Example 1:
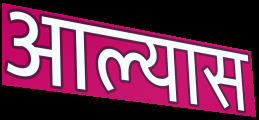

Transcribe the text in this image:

आल्यास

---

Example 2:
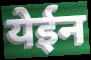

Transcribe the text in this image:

येईन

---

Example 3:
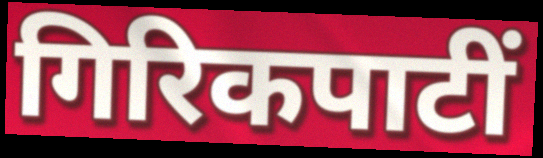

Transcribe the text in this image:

गिरिकपाटीं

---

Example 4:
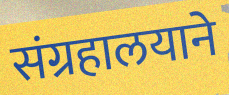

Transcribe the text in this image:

संग्रहालयाने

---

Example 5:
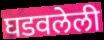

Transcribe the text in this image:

घडवलेली